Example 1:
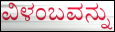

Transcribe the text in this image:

ವಿಳಂಬವನ್ನು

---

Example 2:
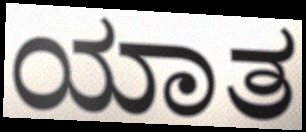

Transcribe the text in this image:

ಯಾತ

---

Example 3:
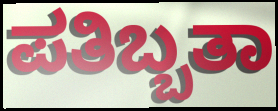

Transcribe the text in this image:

ಪತಿಬ್ಬತಾ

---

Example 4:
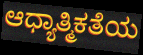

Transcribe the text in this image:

ಆಧ್ಯಾತ್ಮಿಕತೆಯ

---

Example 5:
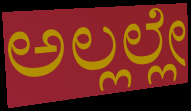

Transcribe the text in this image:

ಅಲ್ಲಲ್ಲೇ